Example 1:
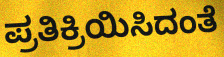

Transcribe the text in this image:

ಪ್ರತಿಕ್ರಿಯಿಸಿದಂತೆ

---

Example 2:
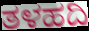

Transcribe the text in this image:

ತಳಹದಿ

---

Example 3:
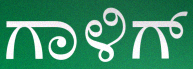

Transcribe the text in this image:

ಗಾಳಿಗ್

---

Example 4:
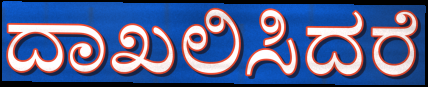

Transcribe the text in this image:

ದಾಖಲಿಸಿದರೆ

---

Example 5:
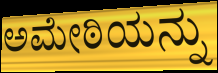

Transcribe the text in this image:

ಅಮೇಠಿಯನ್ನು